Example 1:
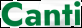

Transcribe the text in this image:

Canti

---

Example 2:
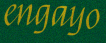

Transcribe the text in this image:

engayo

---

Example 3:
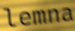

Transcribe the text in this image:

lemna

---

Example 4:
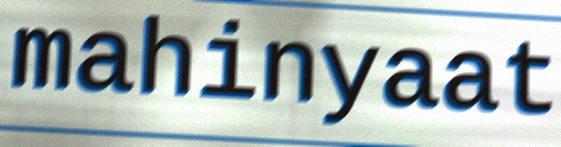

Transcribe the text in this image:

mahinyaat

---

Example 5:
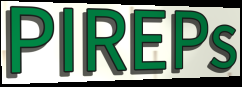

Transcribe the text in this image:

PIREPs